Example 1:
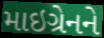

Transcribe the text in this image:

માઇગ્રેનને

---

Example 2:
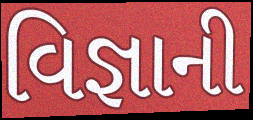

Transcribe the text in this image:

વિજ્ઞાની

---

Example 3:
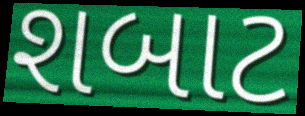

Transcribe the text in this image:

શબાટ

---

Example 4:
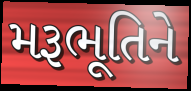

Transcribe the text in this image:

મરૂભૂતિને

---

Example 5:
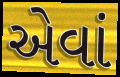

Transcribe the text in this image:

એવાં